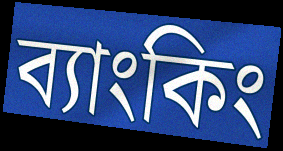
ব্যাংকিং